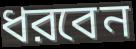
ধরবেন